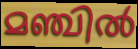
മഞ്ചിൽ